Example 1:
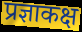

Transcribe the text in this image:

प्रज्ञाकक्ष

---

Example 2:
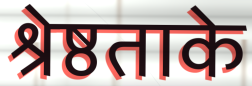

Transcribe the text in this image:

श्रेष्ठताके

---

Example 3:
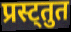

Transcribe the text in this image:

प्रस्ट्तुत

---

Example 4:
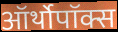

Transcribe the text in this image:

ऑर्थोपॉक्स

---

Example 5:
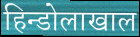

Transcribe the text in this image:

हिन्डोलाखाल